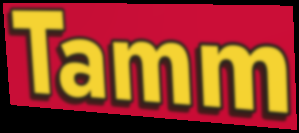
Tamm